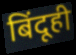
बिंदूही